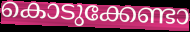
കൊടുക്കേണ്ടാ